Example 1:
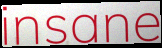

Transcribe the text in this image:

insane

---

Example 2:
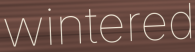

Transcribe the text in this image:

wintered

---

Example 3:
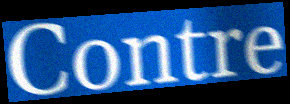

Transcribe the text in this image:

Contre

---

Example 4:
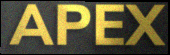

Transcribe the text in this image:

APEX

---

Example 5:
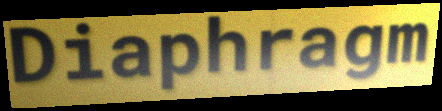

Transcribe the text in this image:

Diaphragm